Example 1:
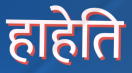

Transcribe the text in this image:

हाहेति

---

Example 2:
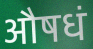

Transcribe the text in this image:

औषधं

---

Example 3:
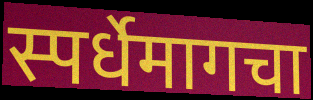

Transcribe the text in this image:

स्पर्धेमागचा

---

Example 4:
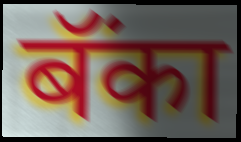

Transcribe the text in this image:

बॅंका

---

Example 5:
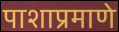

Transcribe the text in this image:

पाशाप्रमाणे